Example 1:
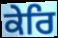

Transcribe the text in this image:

ਕੇਰਿ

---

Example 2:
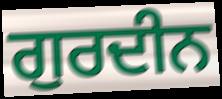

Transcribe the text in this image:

ਗੁਰਦੀਨ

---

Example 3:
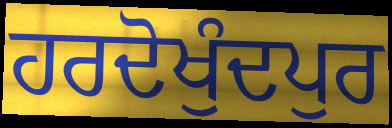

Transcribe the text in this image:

ਹਰਦੋਖੁੰਦਪੁਰ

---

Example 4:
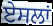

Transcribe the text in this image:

ਏਸਲਾਂ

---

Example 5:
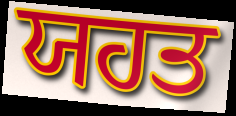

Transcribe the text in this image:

ਯਹਤ